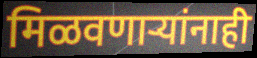
मिळवणाऱ्यांनाही